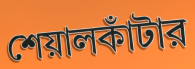
শেয়ালকাঁটার